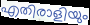
എതിരാളിയും